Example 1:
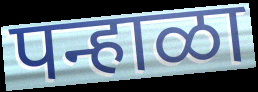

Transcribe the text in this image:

पन्हाळा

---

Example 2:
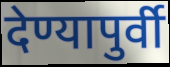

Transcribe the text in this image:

देण्यापुर्वी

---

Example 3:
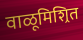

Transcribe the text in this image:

वाळूमिश्रित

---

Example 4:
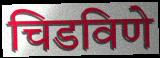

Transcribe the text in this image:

चिडविणे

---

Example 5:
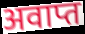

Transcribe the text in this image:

अवाप्त